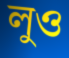
লুও